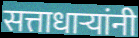
सत्ताधाऱ्यांनी